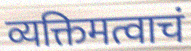
व्यक्तिमत्वाचं